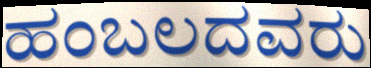
ಹಂಬಲದವರು